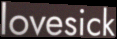
lovesick